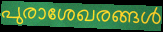
പുരാശേഖരങ്ങൾ